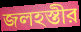
জলহস্তীর